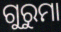
ଗୁରୁମା